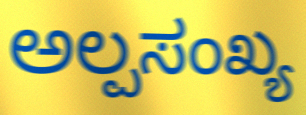
ಅಲ್ಪಸಂಖ್ಯ